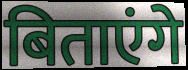
बिताएंगे